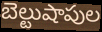
బెల్టుషాపుల